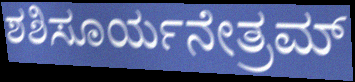
ಶಶಿಸೂರ್ಯನೇತ್ರಮ್